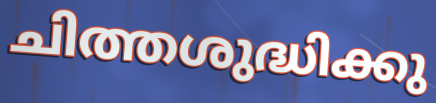
ചിത്തശുദ്ധിക്കു